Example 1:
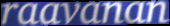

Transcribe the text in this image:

raavanan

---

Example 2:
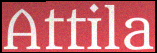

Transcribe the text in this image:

Attila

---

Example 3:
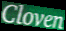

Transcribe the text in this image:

Cloven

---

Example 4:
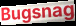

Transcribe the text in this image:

Bugsnag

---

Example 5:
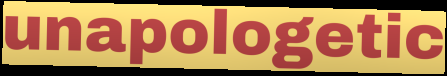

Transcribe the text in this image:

unapologetic